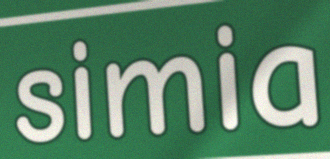
simia